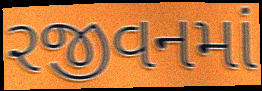
રજીવનમાં